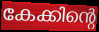
കേക്കിന്റെ